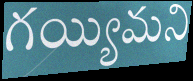
గయ్యిమని